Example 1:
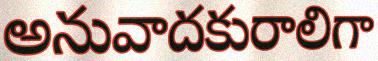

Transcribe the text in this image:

అనువాదకురాలిగా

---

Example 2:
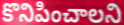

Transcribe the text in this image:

కొనిపించాలని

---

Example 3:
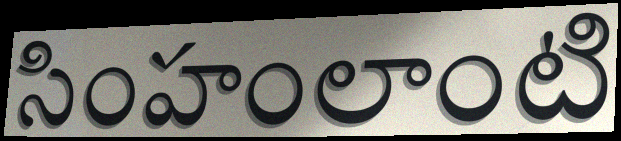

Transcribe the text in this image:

సింహంలాంటి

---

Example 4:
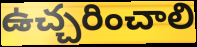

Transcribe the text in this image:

ఉచ్చరించాలి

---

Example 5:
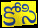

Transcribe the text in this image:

కోసి